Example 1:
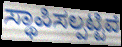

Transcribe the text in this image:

ಸ್ಥಾಪಿಸಲ್ಪಟ್ಟಿವೆ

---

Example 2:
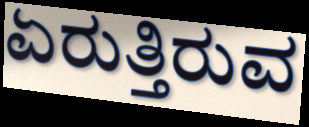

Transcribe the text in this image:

ಏರುತ್ತಿರುವ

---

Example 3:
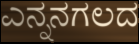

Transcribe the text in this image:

ಎನ್ನನಗಲದ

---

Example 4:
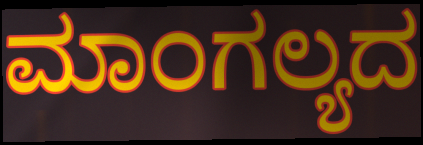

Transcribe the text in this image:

ಮಾಂಗಲ್ಯದ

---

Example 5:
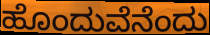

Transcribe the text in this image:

ಹೊಂದುವೆನೆಂದು